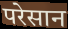
परेसान